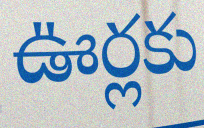
ఊర్లకు